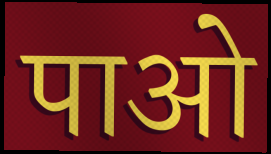
पाओ